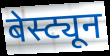
बेस्ट्यून